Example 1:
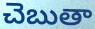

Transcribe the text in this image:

చెబుతా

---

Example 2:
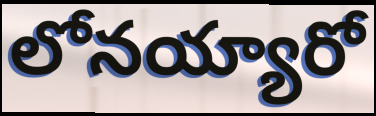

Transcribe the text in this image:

లోనయ్యారో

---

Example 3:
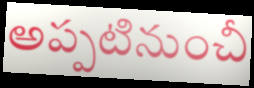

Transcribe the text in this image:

అప్పటినుంచీ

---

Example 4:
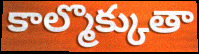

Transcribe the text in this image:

కాల్మొక్కుతా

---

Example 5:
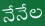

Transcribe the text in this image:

నేనేల